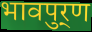
भावपुर्ण